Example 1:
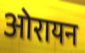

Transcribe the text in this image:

ओरायन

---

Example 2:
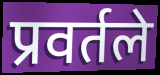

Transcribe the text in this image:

प्रवर्तले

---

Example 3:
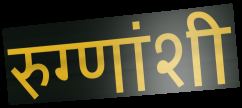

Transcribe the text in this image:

रुग्णांशी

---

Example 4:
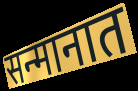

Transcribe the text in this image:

सन्मानात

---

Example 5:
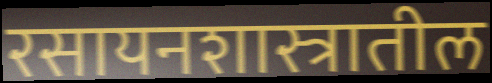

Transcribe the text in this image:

रसायनशास्त्रातील